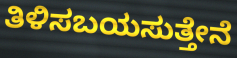
ತಿಳಿಸಬಯಸುತ್ತೇನೆ